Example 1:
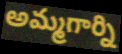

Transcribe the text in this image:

అమ్మగార్ని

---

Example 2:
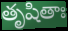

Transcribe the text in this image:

తృషితాః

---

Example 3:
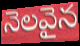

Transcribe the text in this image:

నెలవైన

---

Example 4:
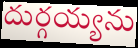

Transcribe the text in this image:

దుర్గయ్యను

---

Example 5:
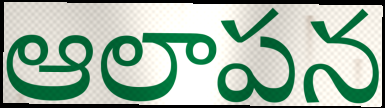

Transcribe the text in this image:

ఆలాపన